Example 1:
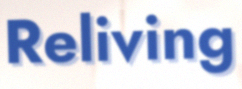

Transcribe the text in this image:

Reliving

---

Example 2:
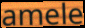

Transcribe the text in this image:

amele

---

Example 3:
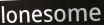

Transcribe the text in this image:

lonesome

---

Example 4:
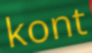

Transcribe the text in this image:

kont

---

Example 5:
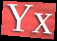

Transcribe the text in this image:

Yx